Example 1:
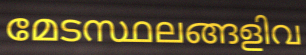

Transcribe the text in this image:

മേടസ്ഥലങ്ങളിവ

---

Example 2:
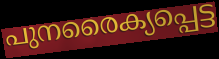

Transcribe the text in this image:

പുനരൈക്യപ്പെട്ട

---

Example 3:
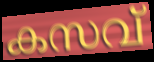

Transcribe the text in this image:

കസവ്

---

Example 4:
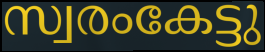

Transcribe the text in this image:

സ്വരംകേട്ടു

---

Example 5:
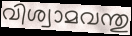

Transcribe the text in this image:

വിശ്വാമവന്തു